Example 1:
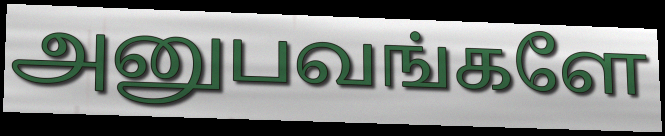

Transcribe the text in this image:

அனுபவங்களே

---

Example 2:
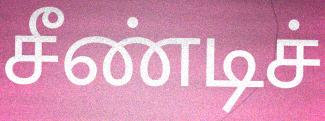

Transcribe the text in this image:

சீண்டிச்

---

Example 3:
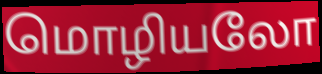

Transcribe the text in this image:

மொழியலோ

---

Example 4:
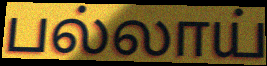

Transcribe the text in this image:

பல்லாய்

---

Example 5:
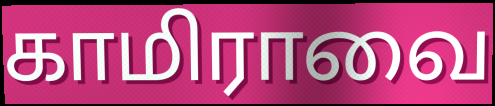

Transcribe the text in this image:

காமிராவை